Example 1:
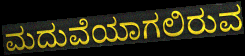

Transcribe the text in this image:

ಮದುವೆಯಾಗಲಿರುವ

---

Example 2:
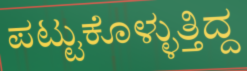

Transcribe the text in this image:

ಪಟ್ಟುಕೊಳ್ಳುತ್ತಿದ್ದ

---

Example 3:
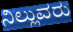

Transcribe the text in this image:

ನಿಲ್ಲುವರು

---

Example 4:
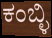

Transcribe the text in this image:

ಕಂಬ್ಳಿ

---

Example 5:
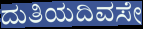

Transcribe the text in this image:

ದುತಿಯದಿವಸೇ